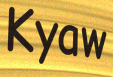
Kyaw